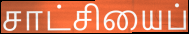
சாட்சியைப்